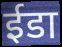
ईडा